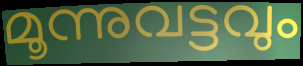
മൂന്നുവട്ടവും